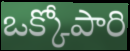
ఒక్కోపారి